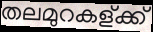
തലമുറകള്ക്ക്